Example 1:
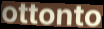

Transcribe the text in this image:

ottonto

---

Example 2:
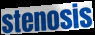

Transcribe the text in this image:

stenosis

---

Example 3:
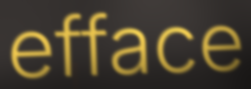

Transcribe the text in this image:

efface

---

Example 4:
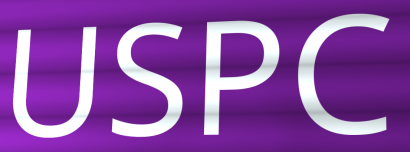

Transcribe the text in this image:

USPC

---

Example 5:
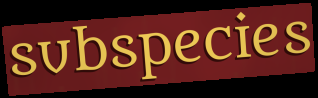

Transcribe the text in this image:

subspecies